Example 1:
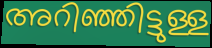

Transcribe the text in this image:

അറിഞ്ഞിട്ടുള്ള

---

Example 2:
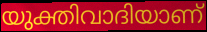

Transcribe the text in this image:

യുക്തിവാദിയാണ്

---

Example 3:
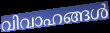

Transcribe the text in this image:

വിവാഹങ്ങൾ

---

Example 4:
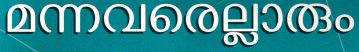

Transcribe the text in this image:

മന്നവരെല്ലാരും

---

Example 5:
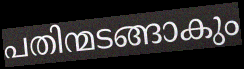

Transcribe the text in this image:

പതിന്മടങ്ങാകും